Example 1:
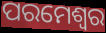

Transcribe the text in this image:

ପରମେଶ୍ବର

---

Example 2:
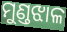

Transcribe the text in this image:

ମୁଣ୍ଡଝାଳ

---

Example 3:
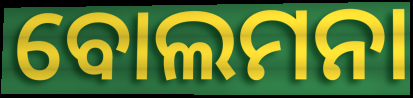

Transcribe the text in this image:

ବୋଲମନା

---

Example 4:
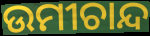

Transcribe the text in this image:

ଉମୀଚାନ୍ଦ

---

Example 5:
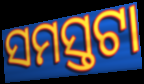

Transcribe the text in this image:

ସମସ୍ତଟା